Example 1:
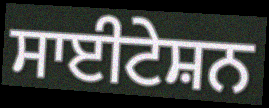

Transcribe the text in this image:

ਸਾਈਟੇਸ਼ਨ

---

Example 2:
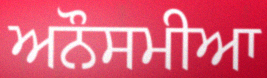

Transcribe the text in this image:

ਅਨੌਸਮੀਆ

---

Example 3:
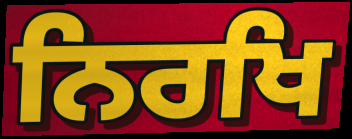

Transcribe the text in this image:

ਨਿਰਖਿ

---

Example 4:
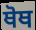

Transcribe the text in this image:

ਥੋਥ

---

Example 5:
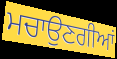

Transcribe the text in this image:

ਮਚਾਉਣਗੀਆਂ